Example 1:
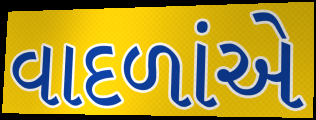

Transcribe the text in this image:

વાદળાંએ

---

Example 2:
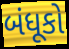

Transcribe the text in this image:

બંધૂકો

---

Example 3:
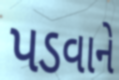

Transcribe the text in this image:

પડવાને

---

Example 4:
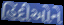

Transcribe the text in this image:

હિંદીઓને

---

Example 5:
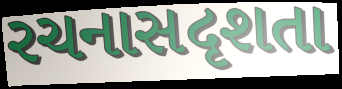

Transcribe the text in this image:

રચનાસદૃશતા